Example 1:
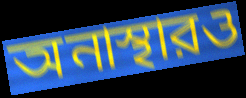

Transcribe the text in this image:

অনাস্থারও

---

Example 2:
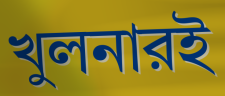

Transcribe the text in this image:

খুলনারই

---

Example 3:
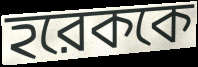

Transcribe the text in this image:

হরেককে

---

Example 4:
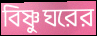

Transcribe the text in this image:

বিষ্ণুঘরের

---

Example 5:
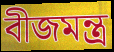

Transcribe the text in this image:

বীজমন্ত্র